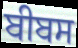
ਬੀਬਸ